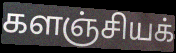
களஞ்சியக்